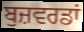
ਬੁਜ਼ਵਰਡਾਂ